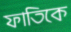
ফাতিকে